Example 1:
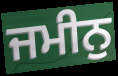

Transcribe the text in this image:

ਜਮੀਨੁ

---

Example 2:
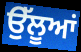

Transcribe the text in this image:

ਉੱਲੂਆਂ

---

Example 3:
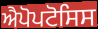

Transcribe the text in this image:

ਐਪੋਪਟੋਸਿਸ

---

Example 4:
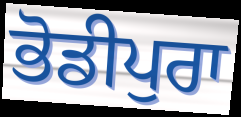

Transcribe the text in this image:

ਭੋਡੀਪੁਰਾ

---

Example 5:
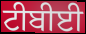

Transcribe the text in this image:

ਟੀਬੀਈ